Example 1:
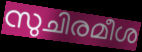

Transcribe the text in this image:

സുചിരമീശ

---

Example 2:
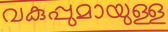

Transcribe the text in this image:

വകുപ്പുമായുള്ള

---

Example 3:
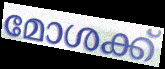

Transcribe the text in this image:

മോശക്ക്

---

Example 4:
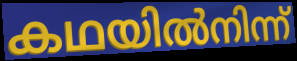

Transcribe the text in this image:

കഥയിൽനിന്ന്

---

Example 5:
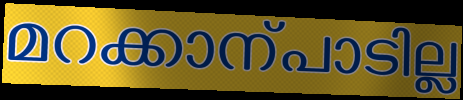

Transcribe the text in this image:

മറക്കാന്പാടില്ല